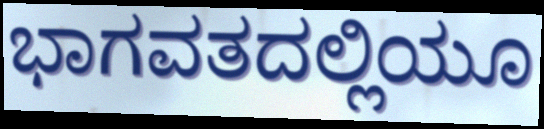
ಭಾಗವತದಲ್ಲಿಯೂ